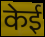
केई